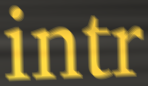
intr